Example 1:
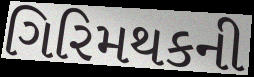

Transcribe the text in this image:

ગિરિમથકની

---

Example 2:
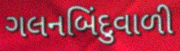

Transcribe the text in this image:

ગલનબિંદુવાળી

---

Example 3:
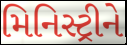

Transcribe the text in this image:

મિનિસ્ટ્રીને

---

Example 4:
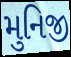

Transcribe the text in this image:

મુનિજી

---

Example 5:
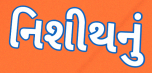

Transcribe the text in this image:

નિશીથનું